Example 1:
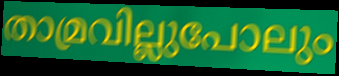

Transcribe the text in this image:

താമ്രവില്ലുപോലും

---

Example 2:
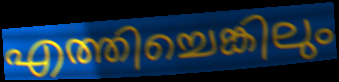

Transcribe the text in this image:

എത്തിച്ചെങ്കിലും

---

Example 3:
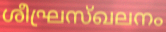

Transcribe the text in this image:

ശീഘ്രസ്ഖലനം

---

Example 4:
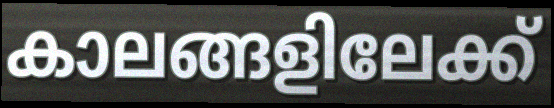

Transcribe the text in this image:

കാലങ്ങളിലേക്ക്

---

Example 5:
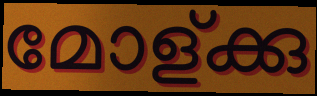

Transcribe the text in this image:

മോള്ക്കു